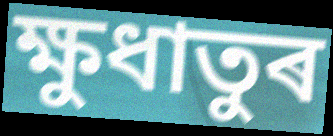
ক্ষুধাতুৰ